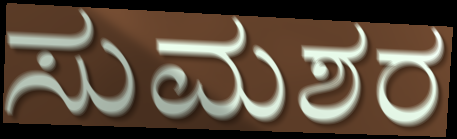
ಸುಮಶರ